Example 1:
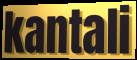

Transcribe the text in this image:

kantali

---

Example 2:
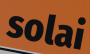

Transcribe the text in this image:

solai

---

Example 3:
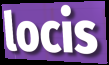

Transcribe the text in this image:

locis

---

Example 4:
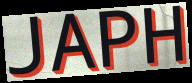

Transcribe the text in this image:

JAPH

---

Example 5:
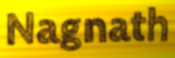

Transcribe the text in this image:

Nagnath